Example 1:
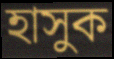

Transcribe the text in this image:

হাসুক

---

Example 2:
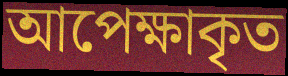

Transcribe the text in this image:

আপেক্ষাকৃত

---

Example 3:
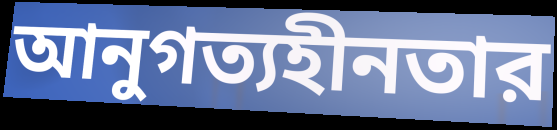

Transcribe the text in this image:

আনুগত্যহীনতার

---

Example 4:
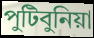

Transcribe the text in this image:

পুটিবুনিয়া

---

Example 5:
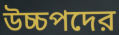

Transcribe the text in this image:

উচ্চপদের